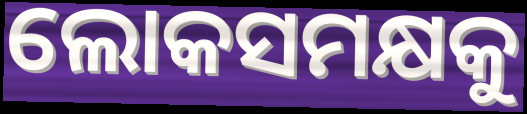
ଲୋକସମକ୍ଷକୁ